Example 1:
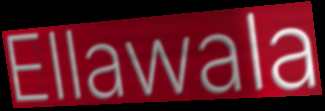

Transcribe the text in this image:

Ellawala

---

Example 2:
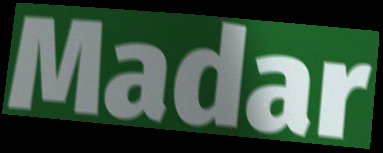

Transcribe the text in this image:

Madar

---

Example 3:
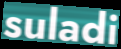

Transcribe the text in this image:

suladi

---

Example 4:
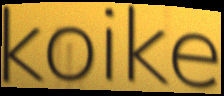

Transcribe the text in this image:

koike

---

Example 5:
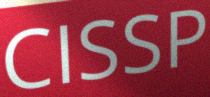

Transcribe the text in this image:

CISSP